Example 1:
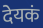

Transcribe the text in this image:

देयकं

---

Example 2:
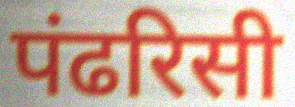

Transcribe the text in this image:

पंढरिसी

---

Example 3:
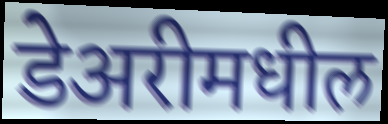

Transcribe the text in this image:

डेअरीमधील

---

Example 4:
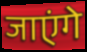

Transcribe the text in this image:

जाएंगे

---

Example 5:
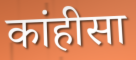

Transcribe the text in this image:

कांहीसा